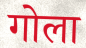
गोला